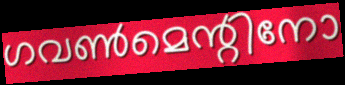
ഗവൺമെന്റിനോ